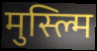
मुस्ल्मि